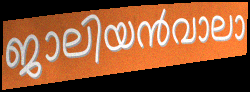
ജാലിയൻവാലാ